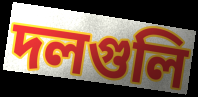
দলগুলি